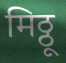
मिठ्ठू